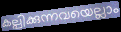
കല്പിക്കുന്നവയെല്ലാം